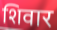
शिवार